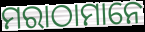
ମରାଠାମାନେ